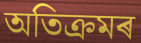
অতিক্ৰমৰ